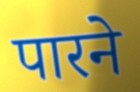
पारने